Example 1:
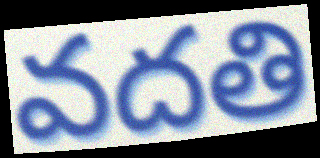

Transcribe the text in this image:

వదతి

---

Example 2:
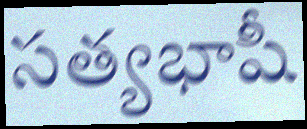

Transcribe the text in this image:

సత్యభాషీ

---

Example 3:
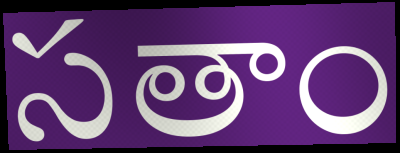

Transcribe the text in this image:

సతాం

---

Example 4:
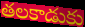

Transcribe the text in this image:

తలకాడుకు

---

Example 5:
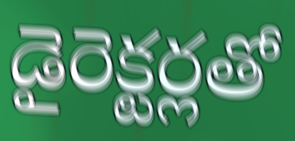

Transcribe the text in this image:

డైరెక్టర్లతో